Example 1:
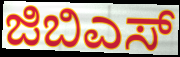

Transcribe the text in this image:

ಜಿಬಿಎಸ್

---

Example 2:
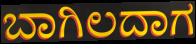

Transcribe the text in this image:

ಬಾಗಿಲದಾಗ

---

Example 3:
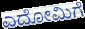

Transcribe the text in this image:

ಎದೋಮಿಗೆ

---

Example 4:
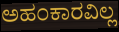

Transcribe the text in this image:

ಅಹಂಕಾರವಿಲ್ಲ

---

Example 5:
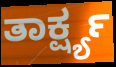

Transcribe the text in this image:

ತಾರ್ಕ್ಷ್ಯ